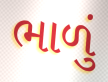
ભાળું